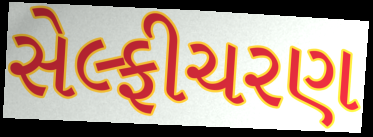
સેલ્ફીચરણ